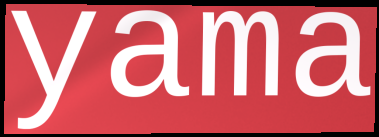
yama